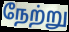
நேற்று